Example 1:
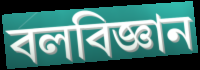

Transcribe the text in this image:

বলবিজ্ঞান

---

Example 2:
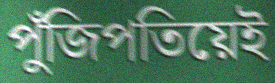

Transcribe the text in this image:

পুঁজিপতিয়েই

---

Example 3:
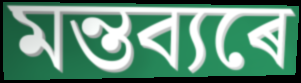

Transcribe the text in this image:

মন্তব্যৰে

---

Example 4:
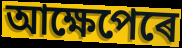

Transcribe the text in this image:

আক্ষেপেৰে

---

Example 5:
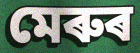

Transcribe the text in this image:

মেৰুৰ